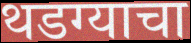
थडग्याचा